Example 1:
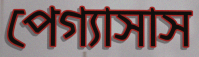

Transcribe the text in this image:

পেগ্যাসাস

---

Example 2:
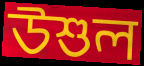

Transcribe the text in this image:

উশুল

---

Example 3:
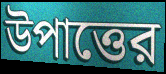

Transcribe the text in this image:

উপাত্তের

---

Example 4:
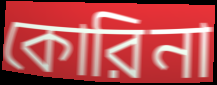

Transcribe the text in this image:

কোরিনা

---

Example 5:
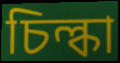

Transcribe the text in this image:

চিল্কা